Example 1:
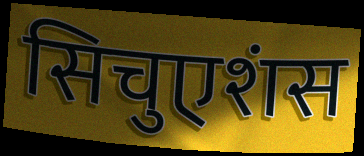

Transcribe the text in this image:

सिचुएशंस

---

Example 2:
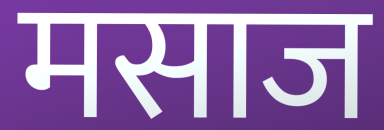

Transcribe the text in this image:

मसाज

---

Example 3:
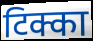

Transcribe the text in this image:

टिक्का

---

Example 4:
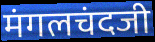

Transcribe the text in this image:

मंगलचंदजी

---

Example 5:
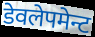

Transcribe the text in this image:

डेवलेपमेन्ट